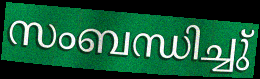
സംബന്ധിച്ചു്